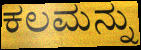
ಕಲಮನ್ನು